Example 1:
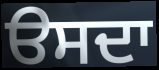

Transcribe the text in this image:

ੳਸਦਾ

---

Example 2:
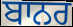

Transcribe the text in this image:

ਬਾਨਰ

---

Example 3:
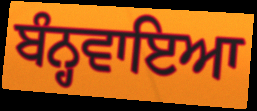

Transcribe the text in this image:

ਬੰਨ੍ਹਵਾਇਆ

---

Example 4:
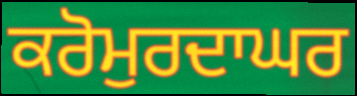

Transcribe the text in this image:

ਕਰੋਮੁਰਦਾਘਰ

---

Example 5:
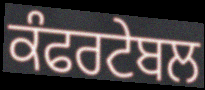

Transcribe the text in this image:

ਕੰਫਰਟੇਬਲ